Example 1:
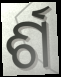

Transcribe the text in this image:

ର୍ଶ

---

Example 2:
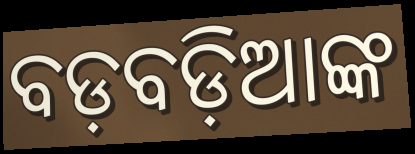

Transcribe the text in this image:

ବଡ଼ବଡ଼ିଆଙ୍କ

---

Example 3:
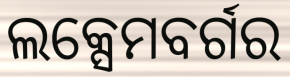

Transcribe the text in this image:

ଲକ୍ସେମବର୍ଗର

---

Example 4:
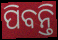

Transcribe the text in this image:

ପିବନ୍ତି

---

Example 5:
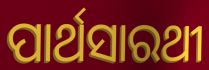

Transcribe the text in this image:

ପାର୍ଥସାରଥୀ